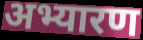
अभ्यारण